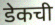
डेकची